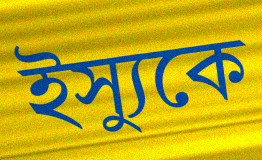
ইস্যুকে